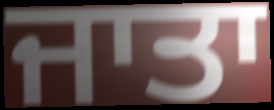
ਜਾਤਾ